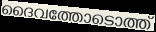
ദൈവത്തോടൊത്ത്